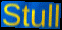
Stull